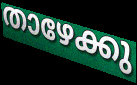
താഴേക്കു